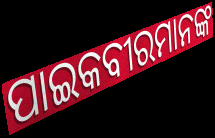
ପାଇକବୀରମାନଙ୍କ